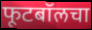
फूटबॉलचा